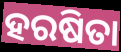
ହରଷିତା